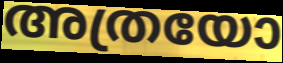
അത്രയോ